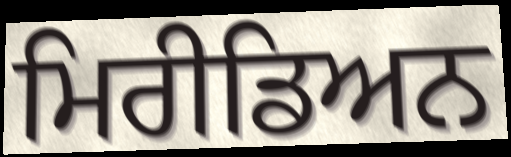
ਮਿਰੀਡਿਅਨ